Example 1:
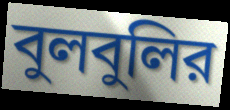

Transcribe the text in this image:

বুলবুলির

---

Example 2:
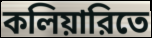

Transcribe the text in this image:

কলিয়ারিতে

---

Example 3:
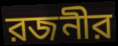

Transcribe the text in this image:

রজনীর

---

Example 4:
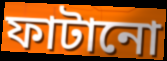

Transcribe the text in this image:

ফাটানো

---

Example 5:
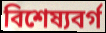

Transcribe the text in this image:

বিশেষ্যবর্গ